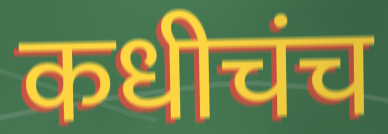
कधीचंच